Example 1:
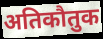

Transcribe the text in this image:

अतिकौतुक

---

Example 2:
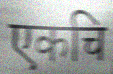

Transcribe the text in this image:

एकचि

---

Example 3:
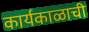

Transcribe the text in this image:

कार्यकाळाची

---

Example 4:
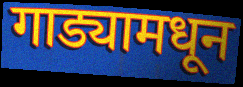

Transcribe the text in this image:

गाड्यामधून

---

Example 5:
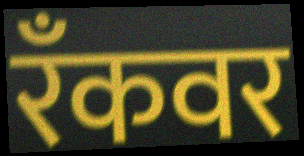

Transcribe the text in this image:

रँकवर